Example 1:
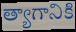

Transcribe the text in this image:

త్యాగానికి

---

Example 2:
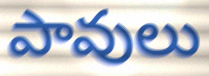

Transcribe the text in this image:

పావులు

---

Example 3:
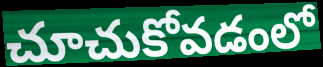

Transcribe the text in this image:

చూచుకోవడంలో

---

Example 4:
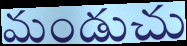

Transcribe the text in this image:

మండుచు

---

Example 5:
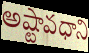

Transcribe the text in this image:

అష్టావధాని